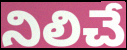
నిలిచే